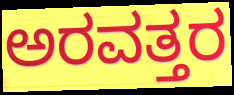
ಅರವತ್ತರ